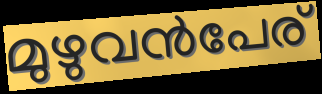
മുഴുവൻപേര്